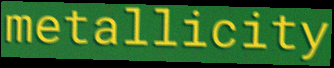
metallicity